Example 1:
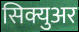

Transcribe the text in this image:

सिक्युअर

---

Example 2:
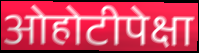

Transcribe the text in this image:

ओहोटीपेक्षा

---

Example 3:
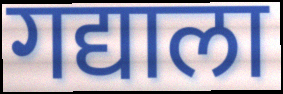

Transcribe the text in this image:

गद्याला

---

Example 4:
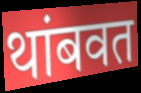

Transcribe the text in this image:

थांबवत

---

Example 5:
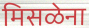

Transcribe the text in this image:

मिसळेना